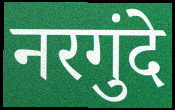
नरगुंदे